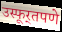
उस्फूर्तपणे